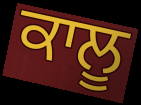
ਕਾਲੂ